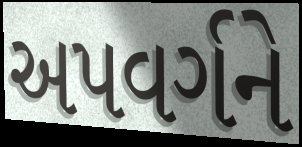
અપવર્ગને